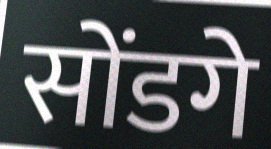
सोंडगे